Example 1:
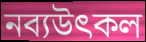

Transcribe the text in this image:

নব্যউৎকল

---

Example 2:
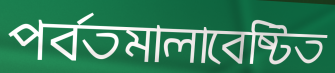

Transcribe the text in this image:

পর্বতমালাবেষ্টিত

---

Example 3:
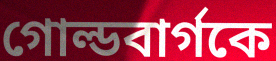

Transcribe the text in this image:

গোল্ডবার্গকে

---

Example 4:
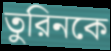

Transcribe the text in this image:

তুরিনকে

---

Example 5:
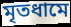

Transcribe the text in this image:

মৃতধামে